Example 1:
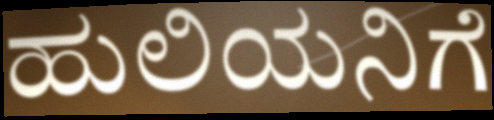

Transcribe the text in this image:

ಹುಲಿಯನಿಗೆ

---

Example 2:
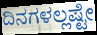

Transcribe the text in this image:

ದಿನಗಳಲ್ಲಷ್ಟೇ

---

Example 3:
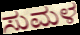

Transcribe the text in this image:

ಸುಮಳ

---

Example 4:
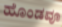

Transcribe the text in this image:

ಹೊಂಡವೂ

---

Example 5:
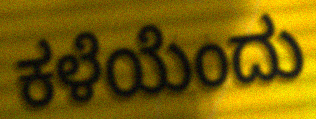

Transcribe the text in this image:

ಕಳೆಯೆಂದು